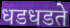
धडधडते